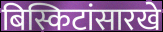
बिस्किटांसारखे